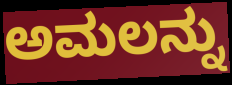
ಅಮಲನ್ನು